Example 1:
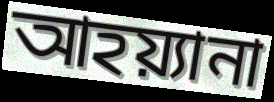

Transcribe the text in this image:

আহয়্যানা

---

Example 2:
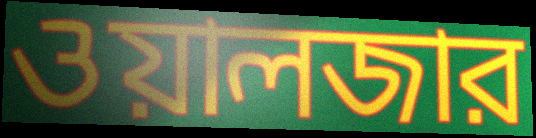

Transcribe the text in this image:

ওয়ালজার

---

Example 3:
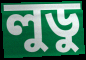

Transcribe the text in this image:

লুডু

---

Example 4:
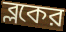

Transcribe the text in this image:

ব্লকের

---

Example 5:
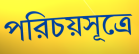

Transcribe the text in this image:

পরিচয়সূত্রে